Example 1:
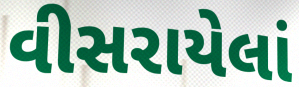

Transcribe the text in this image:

વીસરાયેલાં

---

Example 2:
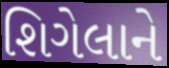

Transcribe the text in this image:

શિગેલાને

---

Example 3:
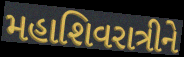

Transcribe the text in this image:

મહાશિવરાત્રીને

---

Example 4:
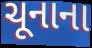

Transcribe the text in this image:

ચૂનાના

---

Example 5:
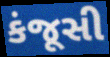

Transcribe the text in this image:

કંજૂસી